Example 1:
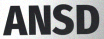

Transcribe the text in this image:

ANSD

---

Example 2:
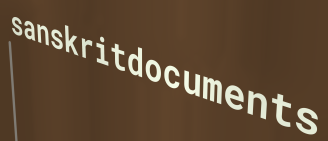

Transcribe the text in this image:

sanskritdocuments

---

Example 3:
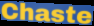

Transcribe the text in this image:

Chaste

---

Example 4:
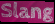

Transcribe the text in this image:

Slang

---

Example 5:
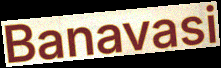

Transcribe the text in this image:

Banavasi